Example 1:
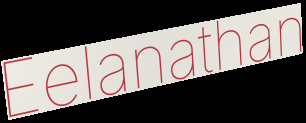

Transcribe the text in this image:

Eelanathan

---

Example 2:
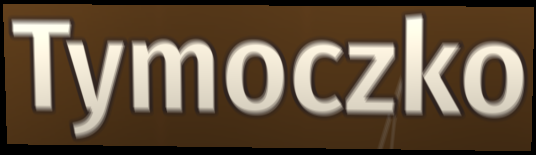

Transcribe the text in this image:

Tymoczko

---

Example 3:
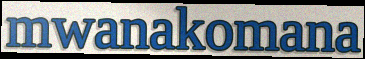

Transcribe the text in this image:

mwanakomana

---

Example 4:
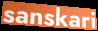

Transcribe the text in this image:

sanskari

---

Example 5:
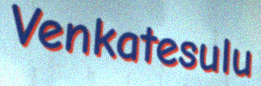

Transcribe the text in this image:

Venkatesulu